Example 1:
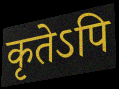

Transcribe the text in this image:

कृतेऽपि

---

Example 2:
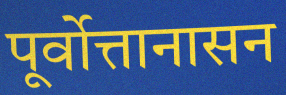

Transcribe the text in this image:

पूर्वोत्तानासन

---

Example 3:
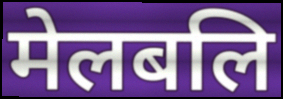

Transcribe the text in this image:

मेलबलि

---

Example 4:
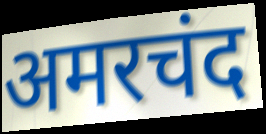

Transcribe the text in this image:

अमरचंद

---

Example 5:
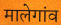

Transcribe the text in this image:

मालेगांव